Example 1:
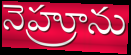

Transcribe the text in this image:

నెహ్రూను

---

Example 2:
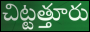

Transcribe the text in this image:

చిట్టత్తూరు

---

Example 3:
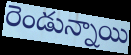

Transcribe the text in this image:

రెండున్నాయి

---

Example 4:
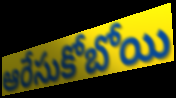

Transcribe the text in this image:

ఆరేసుకోబోయి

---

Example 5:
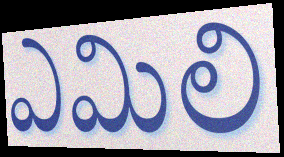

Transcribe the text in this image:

ఎమిలి